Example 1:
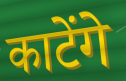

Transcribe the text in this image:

काटेंगे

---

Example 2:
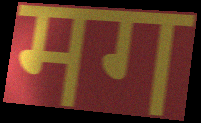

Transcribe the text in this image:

मग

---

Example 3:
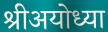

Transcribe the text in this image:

श्रीअयोध्या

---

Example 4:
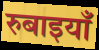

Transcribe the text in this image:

रुबाइयाँ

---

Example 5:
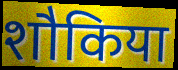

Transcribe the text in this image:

शौकिया